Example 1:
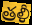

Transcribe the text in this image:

తళీ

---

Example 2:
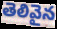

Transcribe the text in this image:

తెలివైన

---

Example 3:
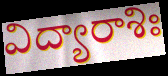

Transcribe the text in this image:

విద్యారాశిః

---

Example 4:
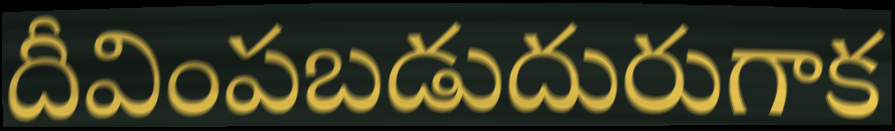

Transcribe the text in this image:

దీవింపబడుదురుగాక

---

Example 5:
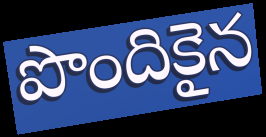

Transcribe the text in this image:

పొందికైన